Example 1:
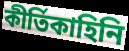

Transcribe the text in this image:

কীর্তিকাহিনি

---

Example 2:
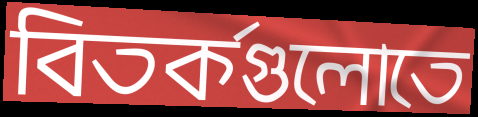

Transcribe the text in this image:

বিতর্কগুলোতে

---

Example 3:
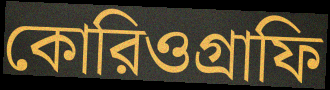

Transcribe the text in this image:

কোরিওগ্রাফি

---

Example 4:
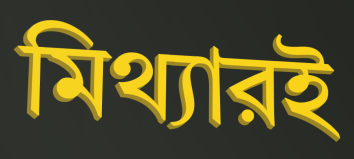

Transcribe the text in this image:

মিথ্যারই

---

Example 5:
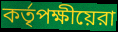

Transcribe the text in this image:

কর্তৃপক্ষীয়েরা